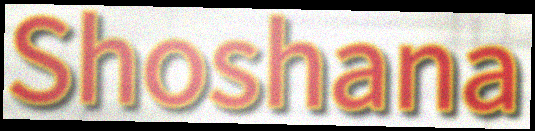
Shoshana